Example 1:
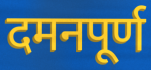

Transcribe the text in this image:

दमनपूर्ण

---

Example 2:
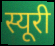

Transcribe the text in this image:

स्यूरी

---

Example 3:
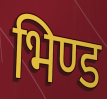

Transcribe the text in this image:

भिण्‍ड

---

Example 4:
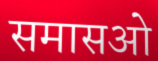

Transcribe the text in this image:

समासओ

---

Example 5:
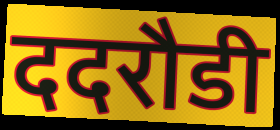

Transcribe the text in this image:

ददरौडी